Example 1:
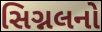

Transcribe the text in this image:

સિગ્નલનો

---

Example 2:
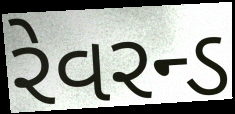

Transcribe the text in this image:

રેવરન્ડ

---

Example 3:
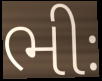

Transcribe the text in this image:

ભીઃ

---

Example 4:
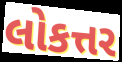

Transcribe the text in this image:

લોકત્તર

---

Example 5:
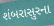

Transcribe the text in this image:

શંબરાસુરના